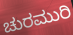
ಚುರಮುರಿ